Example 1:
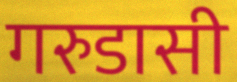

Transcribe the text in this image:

गरुडासी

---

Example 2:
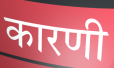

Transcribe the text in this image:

कारणी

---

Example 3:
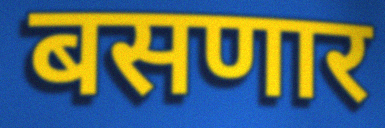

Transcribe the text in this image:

बसणार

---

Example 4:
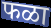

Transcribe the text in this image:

फळा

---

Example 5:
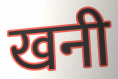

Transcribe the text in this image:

खनी